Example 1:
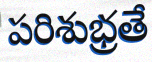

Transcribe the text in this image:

పరిశుభ్రతే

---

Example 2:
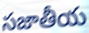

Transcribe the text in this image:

సజాతీయ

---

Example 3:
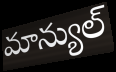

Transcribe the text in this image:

మాన్యుల్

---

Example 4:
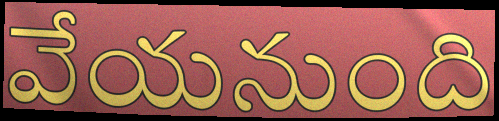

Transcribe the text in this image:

వేయనుంది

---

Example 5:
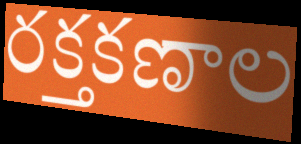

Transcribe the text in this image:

రక్తకణాల